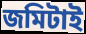
জমিটাই